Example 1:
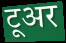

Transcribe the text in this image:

टूअर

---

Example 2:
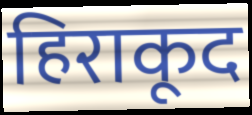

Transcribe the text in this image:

हिराकूद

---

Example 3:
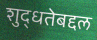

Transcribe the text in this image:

शुद्धतेबद्दल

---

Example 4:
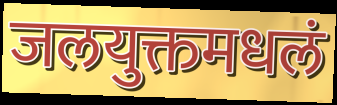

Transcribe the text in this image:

जलयुक्तमधलं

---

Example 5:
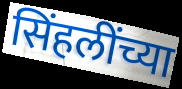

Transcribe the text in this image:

सिंहलींच्या